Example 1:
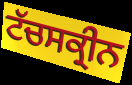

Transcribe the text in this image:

ਟੱਚਸਕ੍ਰੀਨ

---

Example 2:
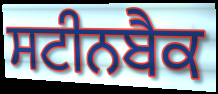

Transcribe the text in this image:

ਸਟੀਨਬੈਕ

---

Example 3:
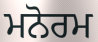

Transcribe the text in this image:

ਮਨੋਰਮ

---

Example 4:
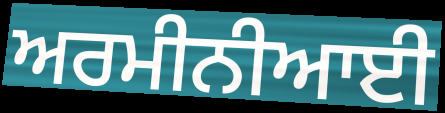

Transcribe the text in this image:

ਅਰਮੀਨੀਆਈ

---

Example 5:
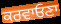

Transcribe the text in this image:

ਕਰਵਾਓਣਾ